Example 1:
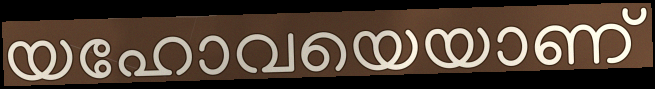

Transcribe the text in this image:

യഹോവയെയാണ്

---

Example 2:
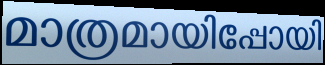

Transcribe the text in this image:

മാത്രമായിപ്പോയി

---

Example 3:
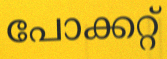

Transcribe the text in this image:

പോക്കറ്റ്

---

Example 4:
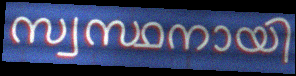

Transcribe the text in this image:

സ്വസ്ഥനായി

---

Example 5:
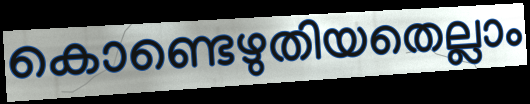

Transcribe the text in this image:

കൊണ്ടെഴുതിയതെല്ലാം